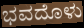
ಭವದೊಳು